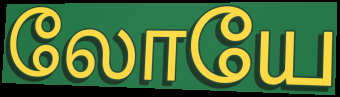
லோயே